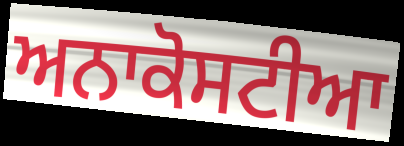
ਅਨਾਕੋਸਟੀਆ